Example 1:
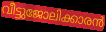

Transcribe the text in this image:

വീട്ടുജോലിക്കാരൻ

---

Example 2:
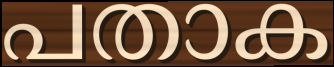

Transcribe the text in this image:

പതാക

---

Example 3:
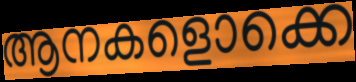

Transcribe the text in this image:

ആനകളൊക്കെ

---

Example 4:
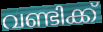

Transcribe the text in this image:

വണ്ടിക്ക്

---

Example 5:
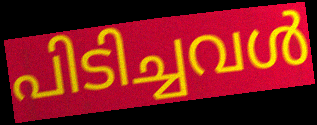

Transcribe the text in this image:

പിടിച്ചവൾ